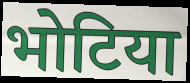
भोटिया